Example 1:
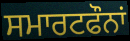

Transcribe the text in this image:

ਸਮਾਰਟਫੌਨਾਂ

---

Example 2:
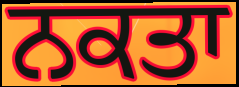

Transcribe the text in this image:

ਨਕਤਾ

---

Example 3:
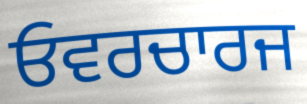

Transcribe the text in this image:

ਓਵਰਚਾਰਜ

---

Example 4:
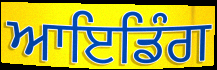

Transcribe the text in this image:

ਆਇਡਿੰਗ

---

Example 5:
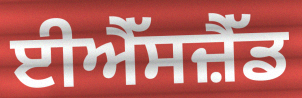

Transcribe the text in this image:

ਈਐੱਸਜ਼ੈੱਡ